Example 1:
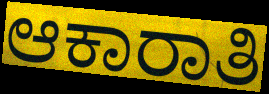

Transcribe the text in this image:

ಆಕಾರಾತಿ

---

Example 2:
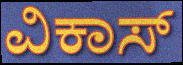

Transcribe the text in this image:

ವಿಕಾಸ್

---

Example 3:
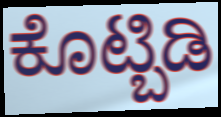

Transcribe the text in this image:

ಕೊಟ್ಬಿಡಿ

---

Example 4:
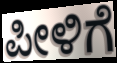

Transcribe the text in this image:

ಪೀಳಿಗೆ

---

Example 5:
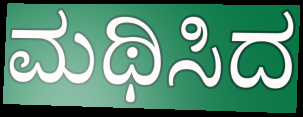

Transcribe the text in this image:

ಮಥಿಸಿದ